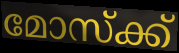
മോസ്ക്ക്